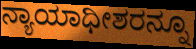
ನ್ಯಾಯಾಧೀಶರನ್ನೂ